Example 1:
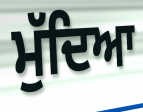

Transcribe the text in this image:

ਮੁੱਦਿਆ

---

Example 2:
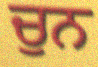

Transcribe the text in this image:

ਚੁਨ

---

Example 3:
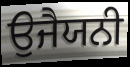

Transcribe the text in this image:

ਉਜੈਯਨੀ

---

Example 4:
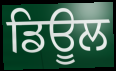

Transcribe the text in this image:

ਡਿਊਲ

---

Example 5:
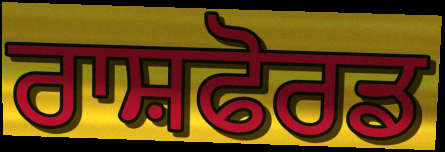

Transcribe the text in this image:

ਰਾਸ਼ਫੋਰਡ